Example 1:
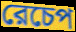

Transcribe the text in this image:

রেচেপ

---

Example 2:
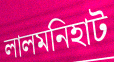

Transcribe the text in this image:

লালমনিহাট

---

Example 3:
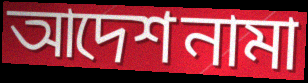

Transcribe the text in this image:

আদেশনামা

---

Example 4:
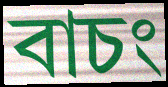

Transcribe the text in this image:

বাচং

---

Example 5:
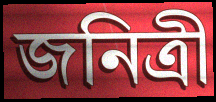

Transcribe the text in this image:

জনিত্রী